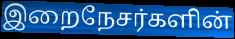
இறைநேசர்களின்